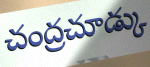
చంద్రచూడ్కు